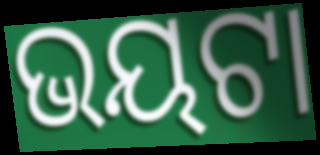
ଭୟଟା